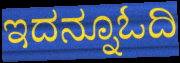
ಇದನ್ನೂಓದಿ